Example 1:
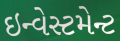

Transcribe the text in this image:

ઇન્વેસ્ટમેન્ટ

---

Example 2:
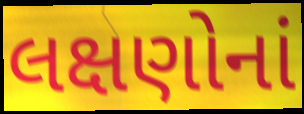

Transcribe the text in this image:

લક્ષણોનાં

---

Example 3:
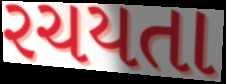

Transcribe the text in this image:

રચયતા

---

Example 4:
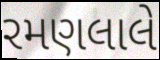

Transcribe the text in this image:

રમણલાલે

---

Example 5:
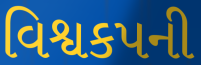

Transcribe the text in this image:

વિશ્વકપની